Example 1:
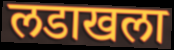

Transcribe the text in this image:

लडाखला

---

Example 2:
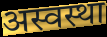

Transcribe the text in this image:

अस्वस्था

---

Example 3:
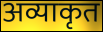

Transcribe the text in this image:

अव्याकृत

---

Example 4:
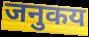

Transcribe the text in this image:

जनुकय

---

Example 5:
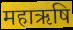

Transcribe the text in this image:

महाऋषि